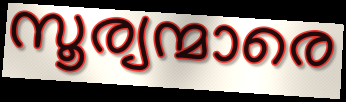
സൂര്യന്മാരെ